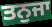
ਤਨੁਜਾ